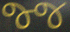
જ્જ